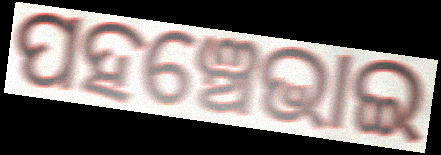
ପହଞ୍ଚେଭାଇ